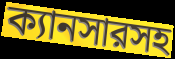
ক্যানসারসহ